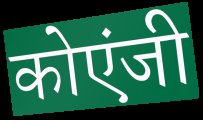
कोएंजी